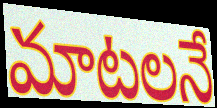
మాటలనే